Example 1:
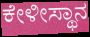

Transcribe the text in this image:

ಕೇಳೀಸ್ಥಾನ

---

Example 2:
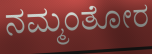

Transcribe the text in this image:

ನಮ್ಮಂತೋರ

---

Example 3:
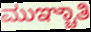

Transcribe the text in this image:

ಮುಞ್ಚಾತಿ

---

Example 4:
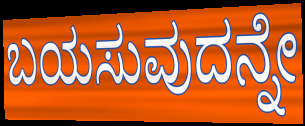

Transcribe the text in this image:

ಬಯಸುವುದನ್ನೇ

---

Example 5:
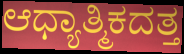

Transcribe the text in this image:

ಆಧ್ಯಾತ್ಮಿಕದತ್ತ